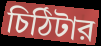
চিঠিটার